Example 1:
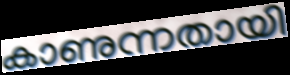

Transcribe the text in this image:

കാണുന്നതായി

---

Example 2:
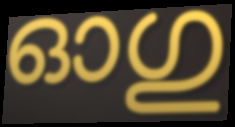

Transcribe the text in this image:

ഓഗു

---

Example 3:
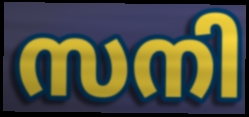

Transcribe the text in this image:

സനി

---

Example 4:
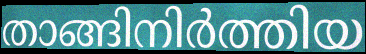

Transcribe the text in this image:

താങ്ങിനിർത്തിയ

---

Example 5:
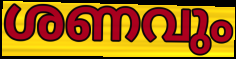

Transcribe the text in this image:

ശണവും